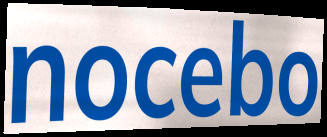
nocebo